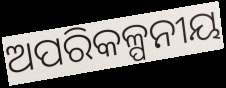
ଅପରିକଳ୍ପନୀୟ